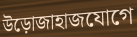
উড়োজাহাজযোগে